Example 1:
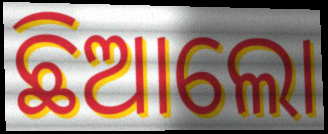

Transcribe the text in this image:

ଛିଆଲୋ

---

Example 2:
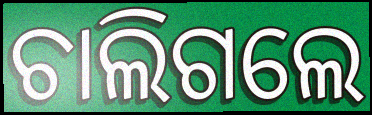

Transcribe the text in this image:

ଚାଲିଗଲେ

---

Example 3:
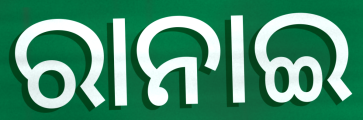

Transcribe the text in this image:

ରାନାଇ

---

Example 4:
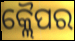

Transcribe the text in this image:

କ୍ଲୈପର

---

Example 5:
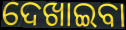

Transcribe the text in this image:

ଦେଖାଇବା